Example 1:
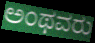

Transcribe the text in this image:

ಅಂಥವರು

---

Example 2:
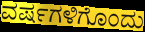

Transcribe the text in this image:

ವರ್ಷಗಳಿಗೊಂದು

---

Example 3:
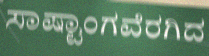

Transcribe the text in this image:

ಸಾಷ್ಟಾಂಗವೆರಗಿದ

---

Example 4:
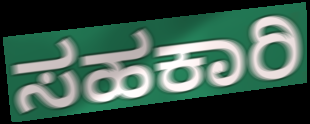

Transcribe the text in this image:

ಸಹಕಾರಿ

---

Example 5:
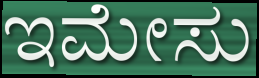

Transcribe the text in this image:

ಇಮೇಸು